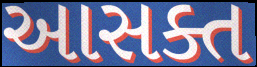
આસક્ત